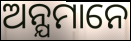
ଅନ୍ଯମାନେ